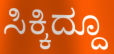
ಸಿಕ್ಕಿದ್ದೂ